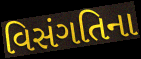
વિસંગતિના